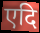
एदि